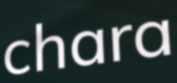
chara